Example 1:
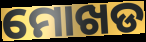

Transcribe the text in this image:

ମୋଖଡ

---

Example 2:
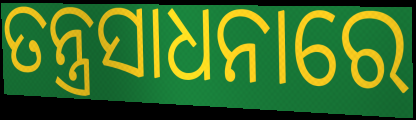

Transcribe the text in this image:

ତନ୍ତ୍ରସାଧନାରେ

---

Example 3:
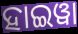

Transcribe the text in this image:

ହାଇୱା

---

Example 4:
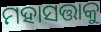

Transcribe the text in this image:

ମହାସତ୍ତାକୁ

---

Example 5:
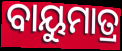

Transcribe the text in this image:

ବାୟୁମାତ୍ର